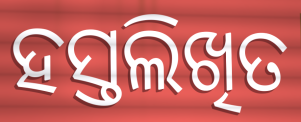
ହସ୍ତଲିଖିତ